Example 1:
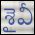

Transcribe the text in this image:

శైవీ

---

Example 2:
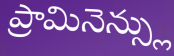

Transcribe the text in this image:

ప్రామినెన్స్లు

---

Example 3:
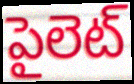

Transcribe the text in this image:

పైలెట్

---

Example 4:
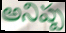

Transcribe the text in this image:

అనిష్ప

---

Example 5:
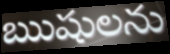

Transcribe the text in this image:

ఋషులను